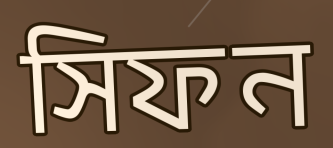
সিফন